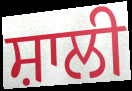
ਸ਼ਾਲੀ